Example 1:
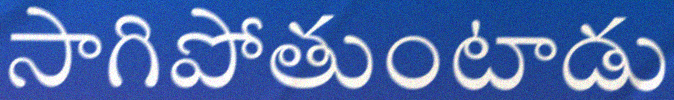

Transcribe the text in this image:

సాగిపోతుంటాడు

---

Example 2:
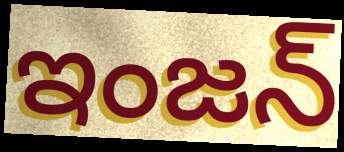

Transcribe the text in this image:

ఇంజన్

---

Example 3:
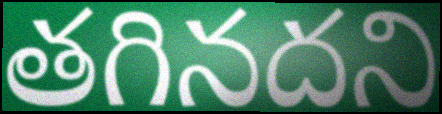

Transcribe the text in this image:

తగినదని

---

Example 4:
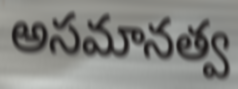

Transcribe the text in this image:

అసమానత్వ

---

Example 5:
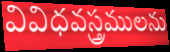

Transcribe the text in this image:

వివిధవస్త్రములను